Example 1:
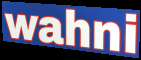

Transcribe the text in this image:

wahni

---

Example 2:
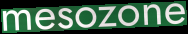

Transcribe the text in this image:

mesozone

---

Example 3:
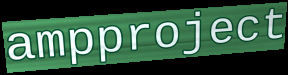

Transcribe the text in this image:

ampproject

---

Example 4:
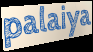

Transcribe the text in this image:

palaiya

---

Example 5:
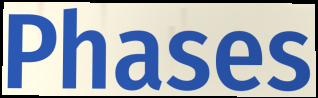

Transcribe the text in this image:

Phases